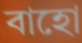
বাহো